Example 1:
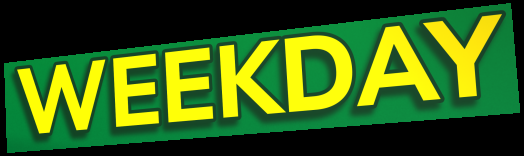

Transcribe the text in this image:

WEEKDAY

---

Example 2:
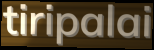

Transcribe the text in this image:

tiripalai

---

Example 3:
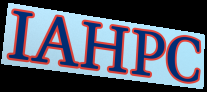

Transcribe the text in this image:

IAHPC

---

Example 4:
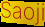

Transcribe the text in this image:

Saoji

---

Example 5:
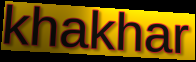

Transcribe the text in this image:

khakhar